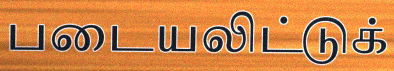
படையலிட்டுக்